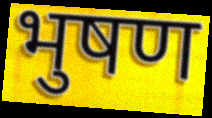
भुषण